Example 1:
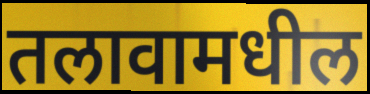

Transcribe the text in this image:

तलावामधील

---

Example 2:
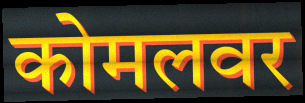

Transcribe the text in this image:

कोमलवर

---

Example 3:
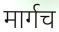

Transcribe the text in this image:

मार्गच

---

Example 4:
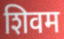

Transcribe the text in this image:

शिवम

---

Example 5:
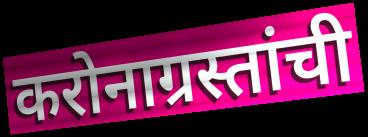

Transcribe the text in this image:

करोनाग्रस्तांची